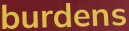
burdens